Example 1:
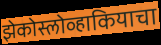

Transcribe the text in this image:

झेकोस्लोव्हाकियाचा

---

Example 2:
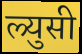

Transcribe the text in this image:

ल्युसी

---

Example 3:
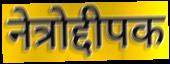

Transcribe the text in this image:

नेत्रोद्दीपक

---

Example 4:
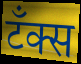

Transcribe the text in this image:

टँक्स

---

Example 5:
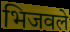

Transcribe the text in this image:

भिजवले